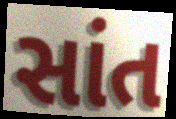
સાંત